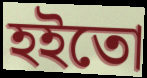
হইতো